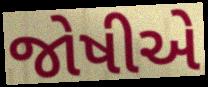
જોષીએ